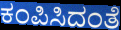
ಕಂಪಿಸಿದಂತೆ